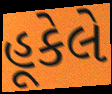
હૂકેલે